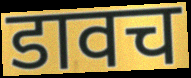
डावच